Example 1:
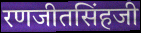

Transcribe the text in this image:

रणजीतसिंहजी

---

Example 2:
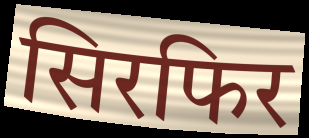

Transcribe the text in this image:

सिरफिर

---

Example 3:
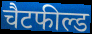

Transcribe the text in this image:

चैटफील्ड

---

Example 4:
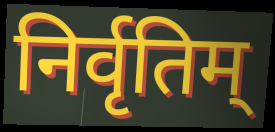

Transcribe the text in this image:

निर्वृतिम्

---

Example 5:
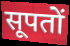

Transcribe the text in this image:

सूपतों